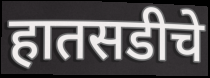
हातसडीचे